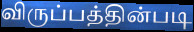
விருப்பத்தின்படி